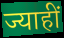
ज्याहीं